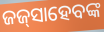
ଜଜ୍‌ସାହେବଙ୍କ